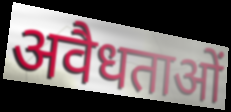
अवैधताओं